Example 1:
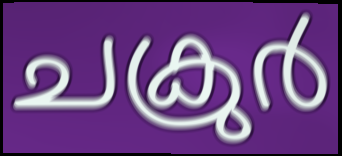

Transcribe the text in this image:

ചക്രുർ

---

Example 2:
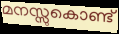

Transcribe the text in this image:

മനസ്സുകൊണ്ട്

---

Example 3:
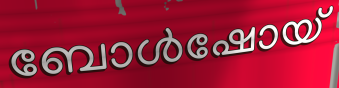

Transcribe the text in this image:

ബോൾഷോയ്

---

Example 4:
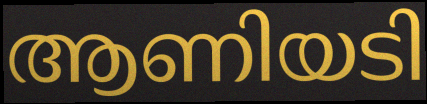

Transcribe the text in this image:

ആണിയടി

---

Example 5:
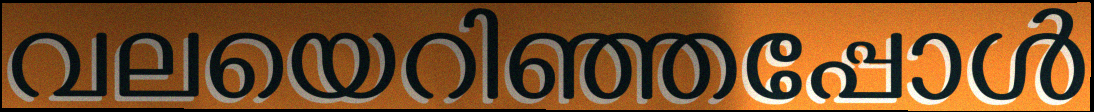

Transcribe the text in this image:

വലയെറിഞ്ഞപ്പോൾ